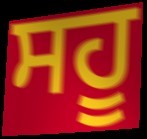
ਸਹੂ